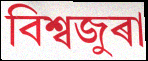
বিশ্বজুৰা